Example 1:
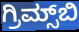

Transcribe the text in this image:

ಗ್ರಿಮ್ಸ್‌ಬಿ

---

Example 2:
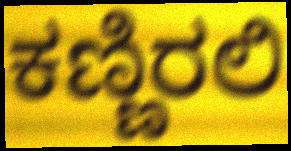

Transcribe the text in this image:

ಕಣ್ಣಿರಲಿ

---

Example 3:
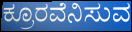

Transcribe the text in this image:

ಕ್ರೂರವೆನಿಸುವ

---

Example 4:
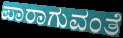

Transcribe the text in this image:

ಪಾರಾಗುವಂತೆ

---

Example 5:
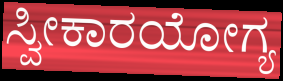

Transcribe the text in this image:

ಸ್ವೀಕಾರಯೋಗ್ಯ